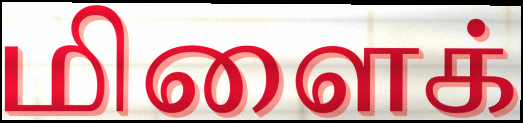
மிளைக்